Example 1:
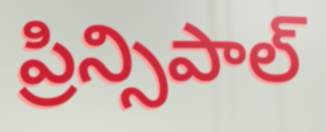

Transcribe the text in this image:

ప్రిన్సిపాల్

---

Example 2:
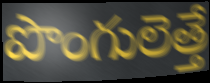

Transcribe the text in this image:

పొంగులెత్తే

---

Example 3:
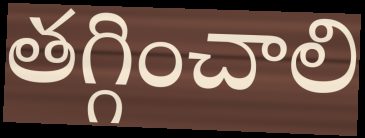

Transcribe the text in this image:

తగ్గించాలి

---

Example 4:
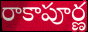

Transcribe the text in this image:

రాకాపూర్ణ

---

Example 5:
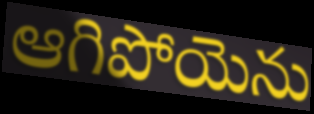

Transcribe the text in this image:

ఆగిపోయెను